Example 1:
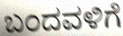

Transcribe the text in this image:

ಬಂದವಳಿಗೆ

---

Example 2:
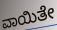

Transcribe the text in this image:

ವಾಯಿತೇ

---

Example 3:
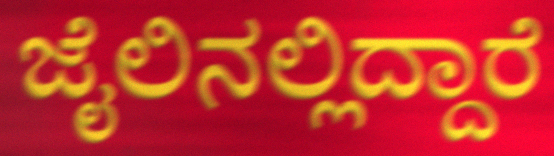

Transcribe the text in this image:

ಜೈಲಿನಲ್ಲಿದ್ದಾರೆ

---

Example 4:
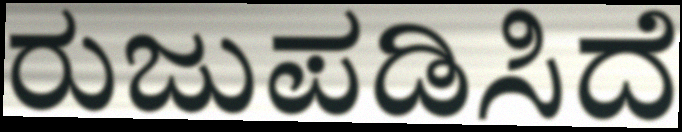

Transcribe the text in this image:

ರುಜುಪಡಿಸಿದೆ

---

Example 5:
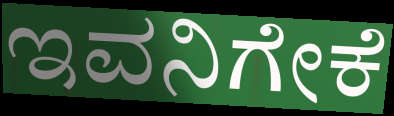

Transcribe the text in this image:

ಇವನಿಗೇಕೆ